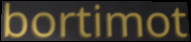
bortimot